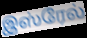
இஸ்ரேல்